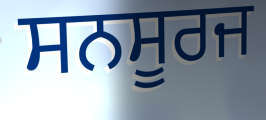
ਸਨਸੂਰਜ